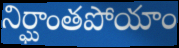
నిర్ఘాంతపోయాం